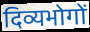
दिव्यभोगों